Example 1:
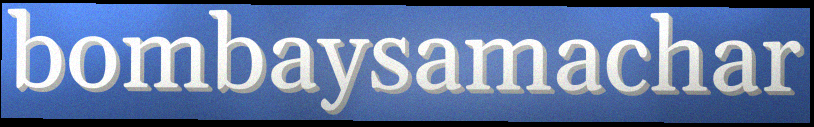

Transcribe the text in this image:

bombaysamachar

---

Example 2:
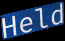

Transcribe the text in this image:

Held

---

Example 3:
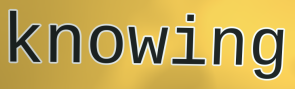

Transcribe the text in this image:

knowing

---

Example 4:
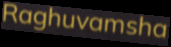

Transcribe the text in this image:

Raghuvamsha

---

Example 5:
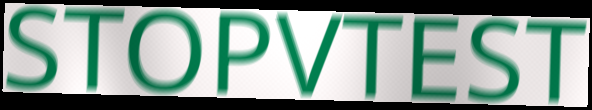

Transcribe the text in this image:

STOPVTEST